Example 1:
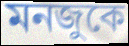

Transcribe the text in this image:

মনজুকে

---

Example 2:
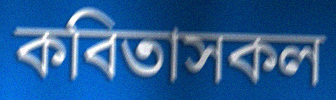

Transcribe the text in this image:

কবিতাসকল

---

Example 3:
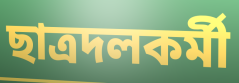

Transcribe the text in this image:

ছাত্রদলকর্মী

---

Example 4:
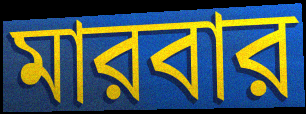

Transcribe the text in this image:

মারবার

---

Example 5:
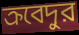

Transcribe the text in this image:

ক্রবেদুর